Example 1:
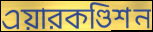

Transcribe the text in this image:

এয়ারকণ্ডিশন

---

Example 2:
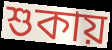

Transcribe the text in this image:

শুকায়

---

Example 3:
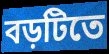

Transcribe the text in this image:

বড়টিতে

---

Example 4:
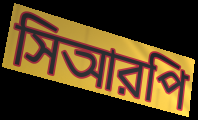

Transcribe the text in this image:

সিআরপি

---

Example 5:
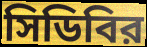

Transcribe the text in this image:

সিডিবির